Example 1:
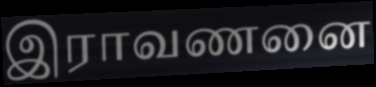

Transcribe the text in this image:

இராவணனை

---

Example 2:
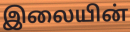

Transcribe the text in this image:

இலையின்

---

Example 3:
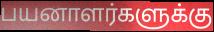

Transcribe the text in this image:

பயனாளர்களுக்கு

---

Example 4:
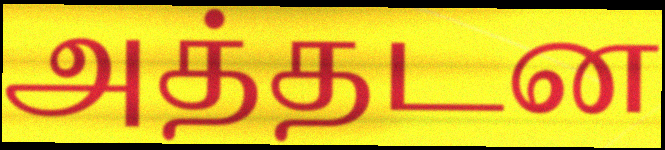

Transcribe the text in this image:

அத்தடன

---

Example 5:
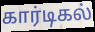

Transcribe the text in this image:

கார்டிகல்